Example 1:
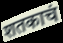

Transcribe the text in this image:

शतकाचं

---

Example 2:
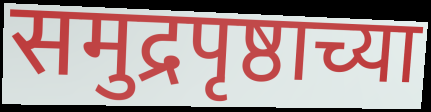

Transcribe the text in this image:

समुद्रपृष्ठाच्या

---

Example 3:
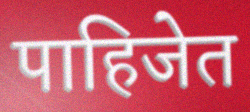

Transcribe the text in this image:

पाहिजेत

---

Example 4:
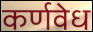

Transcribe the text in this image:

कर्णवेध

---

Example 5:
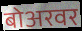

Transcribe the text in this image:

बोअरवर